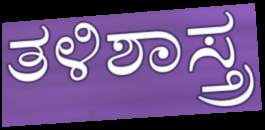
ತಳಿಶಾಸ್ತ್ರ